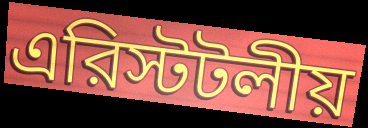
এরিস্টটলীয়